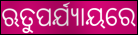
ଋତୁପର୍ଯ୍ୟାୟରେ